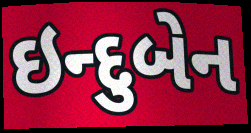
ઇન્દુબેન